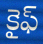
కైఫ్